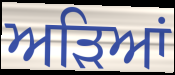
ਅੜਿਆਂ